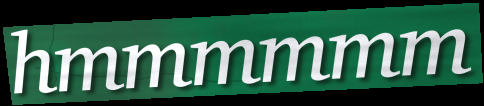
hmmmmmm